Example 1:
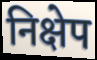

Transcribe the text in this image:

निक्षेप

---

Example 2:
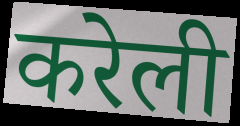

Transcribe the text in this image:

करेली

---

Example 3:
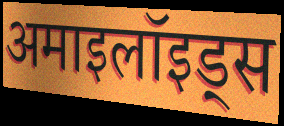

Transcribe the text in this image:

अमाइलॉइड्स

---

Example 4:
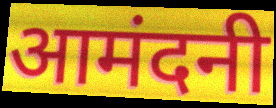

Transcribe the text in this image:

आमंदनी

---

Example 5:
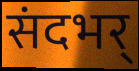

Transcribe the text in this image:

संदभर्